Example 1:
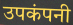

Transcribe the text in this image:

उपकंपनी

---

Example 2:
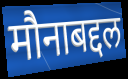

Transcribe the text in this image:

मौनाबद्दल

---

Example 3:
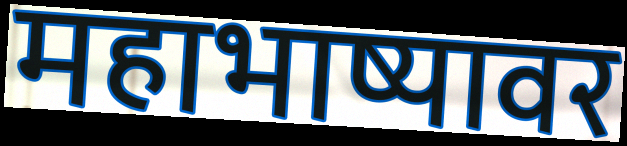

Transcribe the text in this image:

महाभाष्यावर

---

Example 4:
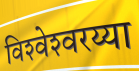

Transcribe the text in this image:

विश्वेश्वरय्या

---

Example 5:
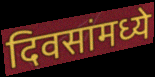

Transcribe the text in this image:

दिवसांमध्ये